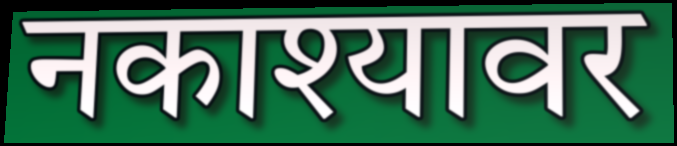
नकाश्यावर